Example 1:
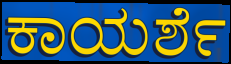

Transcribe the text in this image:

ಕಾಯರ್ಶೆ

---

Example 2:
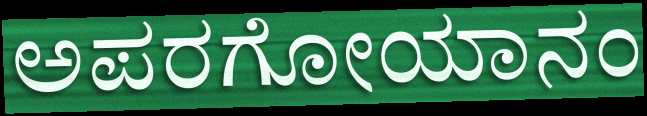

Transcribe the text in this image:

ಅಪರಗೋಯಾನಂ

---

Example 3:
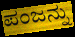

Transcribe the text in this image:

ಪಂಜನ್ನು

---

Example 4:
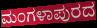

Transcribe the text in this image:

ಮಂಗಳಾಪುರದ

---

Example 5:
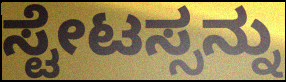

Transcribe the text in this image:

ಸ್ಟೇಟಸ್ಸನ್ನು